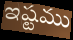
ఇష్టము